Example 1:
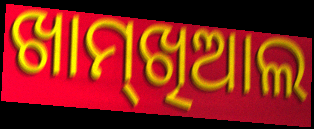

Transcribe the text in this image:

ଖାମ୍‌ଖିଆଲ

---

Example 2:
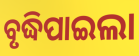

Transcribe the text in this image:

ବୃଦ୍ଧିପାଇଲା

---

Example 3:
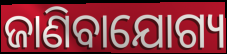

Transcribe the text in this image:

ଜାଣିବାଯୋଗ୍ୟ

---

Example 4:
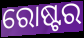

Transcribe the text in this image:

ରୋଷ୍ଟର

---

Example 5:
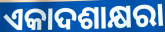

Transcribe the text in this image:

ଏକାଦଶାକ୍ଷରା